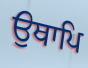
ਉਥਾਪਿ